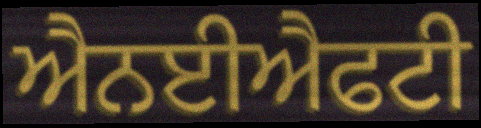
ਐਨਈਐਫਟੀ